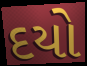
દયો